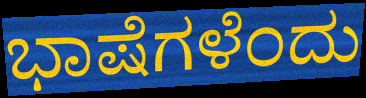
ಭಾಷೆಗಳೆಂದು